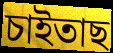
চাইতাছ